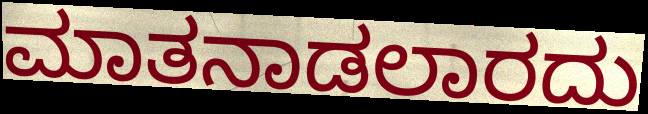
ಮಾತನಾಡಲಾರದು